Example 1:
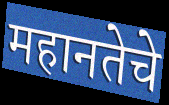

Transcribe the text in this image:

महानतेचे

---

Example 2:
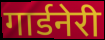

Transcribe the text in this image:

गार्डनेरी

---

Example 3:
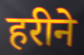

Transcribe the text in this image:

हरीने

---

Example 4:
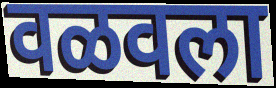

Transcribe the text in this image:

वळवला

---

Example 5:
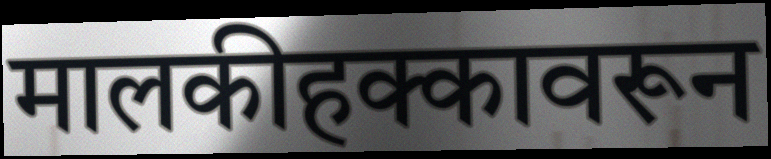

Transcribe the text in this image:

मालकीहक्कावरून